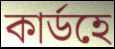
কাৰ্ডহে